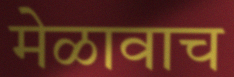
मेळावाच